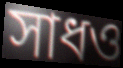
সাধও